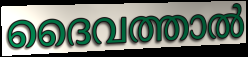
ദൈവത്താൽ